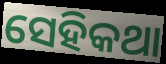
ସେହିକଥା